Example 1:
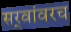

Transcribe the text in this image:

सर्वांवरच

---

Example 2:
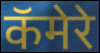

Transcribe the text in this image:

कॅमेरे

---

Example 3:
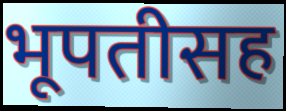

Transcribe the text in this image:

भूपतीसह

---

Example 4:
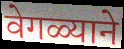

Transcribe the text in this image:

वेगळ्याने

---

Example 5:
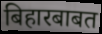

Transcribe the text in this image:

बिहारबाबत